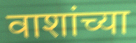
वाशांच्या